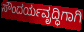
ಸೌಂದರ್ಯವೃದ್ಧಿಗಾಗಿ